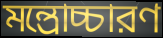
মন্ত্রোচ্চারণ